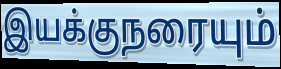
இயக்குநரையும்